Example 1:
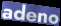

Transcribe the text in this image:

adeno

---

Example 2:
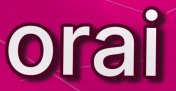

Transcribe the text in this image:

orai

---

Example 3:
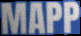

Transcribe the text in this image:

MAPP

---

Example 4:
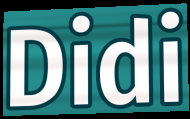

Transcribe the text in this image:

Didi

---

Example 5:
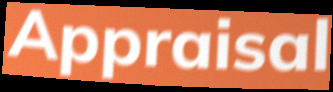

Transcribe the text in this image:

Appraisal